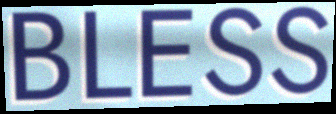
BLESS